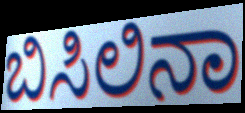
ಬಿಸಿಲಿನಾ